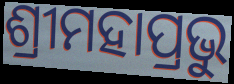
ଶ୍ରୀମହାପ୍ରଭୁ